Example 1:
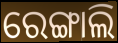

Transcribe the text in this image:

ରେଙ୍ଗାଲି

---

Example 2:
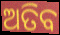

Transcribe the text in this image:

ଅତିବ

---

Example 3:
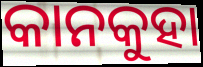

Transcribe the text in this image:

କାନକୁହା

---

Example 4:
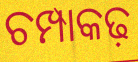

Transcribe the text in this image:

ଚମ୍ପାକଢ଼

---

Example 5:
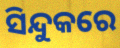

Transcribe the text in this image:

ସିନ୍ଦୁକରେ